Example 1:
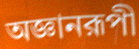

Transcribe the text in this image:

অজ্ঞানরূপী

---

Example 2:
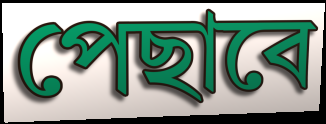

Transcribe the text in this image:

পেছাবে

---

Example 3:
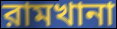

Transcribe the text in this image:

রামখানা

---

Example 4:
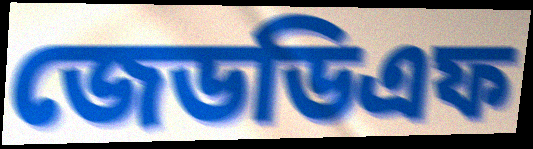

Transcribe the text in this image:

জেডডিএফ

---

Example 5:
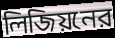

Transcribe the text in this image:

লিজিয়নের